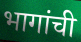
भागांची